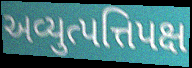
અવ્યુત્પત્તિપક્ષ